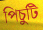
পিচুটি